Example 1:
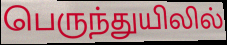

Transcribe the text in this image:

பெருந்துயிலில்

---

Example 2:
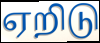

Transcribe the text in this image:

ஏறிடு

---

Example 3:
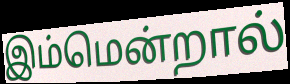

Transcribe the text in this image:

இம்மென்றால்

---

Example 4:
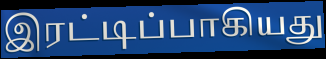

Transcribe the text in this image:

இரட்டிப்பாகியது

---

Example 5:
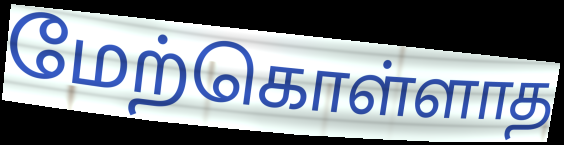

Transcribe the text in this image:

மேற்கொள்ளாத